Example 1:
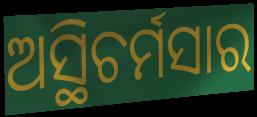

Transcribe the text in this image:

ଅସ୍ଥିଚର୍ମସାର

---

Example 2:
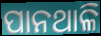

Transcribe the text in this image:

ପାନଥାଳି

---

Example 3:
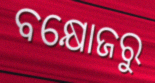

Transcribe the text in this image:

ବକ୍ଷୋଜରୁ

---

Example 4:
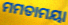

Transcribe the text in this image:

ମମତାମୟା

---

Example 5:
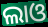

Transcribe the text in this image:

ଲାଓ